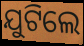
ଯୁଟିଲେ